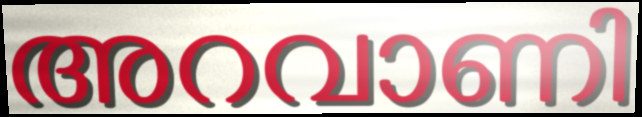
അറവാണി